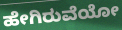
ಹೇಗಿರುವೆಯೋ